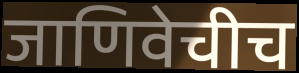
जाणिवेचीच